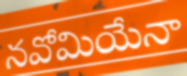
నవోమియేనా